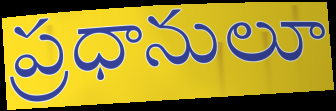
ప్రధానులూ